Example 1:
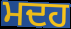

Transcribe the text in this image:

ਮਦਹ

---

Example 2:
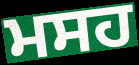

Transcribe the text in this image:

ਮਸਹ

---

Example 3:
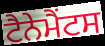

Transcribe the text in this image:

ਟੈਨੇਮੈਂਟਸ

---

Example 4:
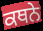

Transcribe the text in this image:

ਕਥਨੇ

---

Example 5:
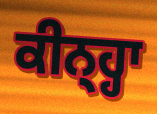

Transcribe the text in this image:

ਕੀਨ੍ਹ੍ਹਾ